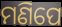
ମଣିପେ